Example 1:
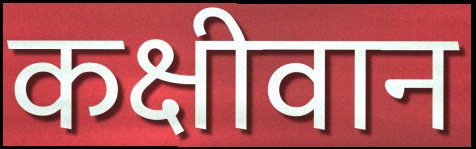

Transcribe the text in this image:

कक्षीवान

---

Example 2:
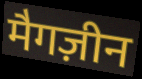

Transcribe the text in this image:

मैगज़ीन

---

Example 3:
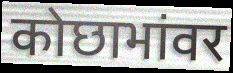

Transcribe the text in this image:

कोछाभांवर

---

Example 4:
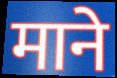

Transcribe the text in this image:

माने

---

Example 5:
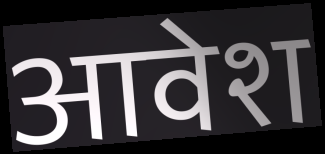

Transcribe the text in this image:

आवेश